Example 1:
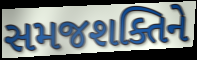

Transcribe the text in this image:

સમજશક્તિને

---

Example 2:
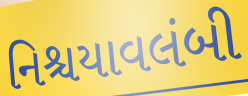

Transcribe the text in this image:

નિશ્ચયાવલંબી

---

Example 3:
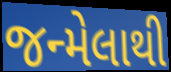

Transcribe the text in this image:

જન્મેલાથી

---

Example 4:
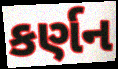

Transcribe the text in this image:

કર્ણન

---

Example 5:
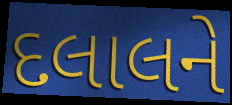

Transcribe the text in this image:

દલાલને